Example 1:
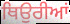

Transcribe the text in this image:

ਥਿਉਰੀਆਂ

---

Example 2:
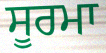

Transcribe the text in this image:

ਸੂਰਮਾ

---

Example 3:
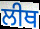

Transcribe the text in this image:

ਲੀਥ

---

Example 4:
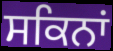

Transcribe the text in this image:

ਸਕਿਨਾਂ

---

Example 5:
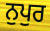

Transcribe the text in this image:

ਨੁਪੁਰ